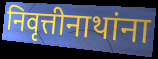
निवृत्तीनाथांना